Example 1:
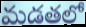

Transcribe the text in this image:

మడతలో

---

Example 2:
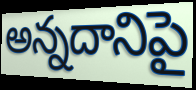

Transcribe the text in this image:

అన్నదానిపై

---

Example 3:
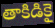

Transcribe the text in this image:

తాకిడికై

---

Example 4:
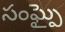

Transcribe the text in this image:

సంఘ్పై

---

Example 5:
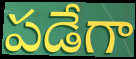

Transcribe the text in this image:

పడేగా